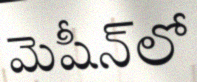
మెషీన్‌లో